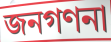
জনগণনা